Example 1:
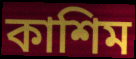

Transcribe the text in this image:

কাশিম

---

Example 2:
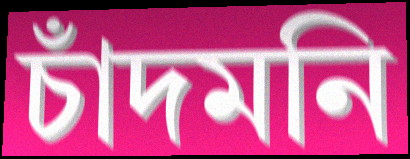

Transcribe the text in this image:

চাঁদমনি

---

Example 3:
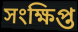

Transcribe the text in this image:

সংক্ষিপ্ত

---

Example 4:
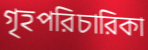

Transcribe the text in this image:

গৃহপরিচারিকা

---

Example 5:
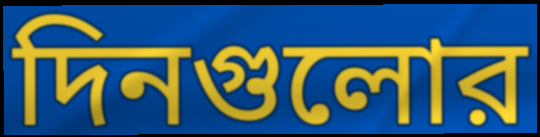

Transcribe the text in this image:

দিনগুলোর